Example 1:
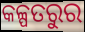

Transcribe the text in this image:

କଳ୍ପତରୁର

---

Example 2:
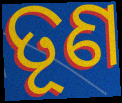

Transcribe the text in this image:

ତୂଣ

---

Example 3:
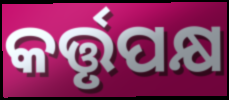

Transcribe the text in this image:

କର୍ତ୍ତୃପକ୍ଷ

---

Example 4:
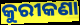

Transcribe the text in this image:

କୁରୀକଣା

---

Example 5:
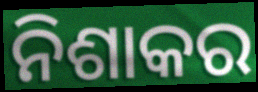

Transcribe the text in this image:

ନିଶାକର